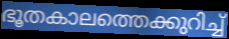
ഭൂതകാലത്തെക്കുറിച്ച്